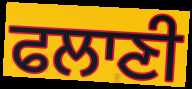
ਫਲਾਣੀ